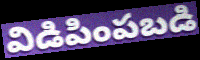
విడిపింపబడి